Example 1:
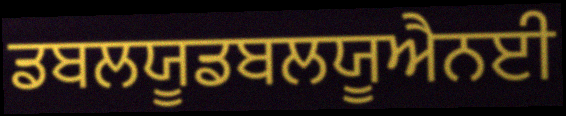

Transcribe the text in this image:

ਡਬਲਯੂਡਬਲਯੂਐਨਈ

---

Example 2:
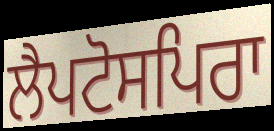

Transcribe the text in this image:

ਲੈਪਟੋਸਪਿਰਾ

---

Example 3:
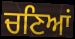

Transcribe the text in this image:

ਚਣਿਆਂ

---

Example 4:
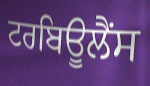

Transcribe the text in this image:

ਟਰਬਿਊਲੈਂਸ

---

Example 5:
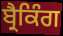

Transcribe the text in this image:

ਬ੍ਰੈਕਿੰਗ